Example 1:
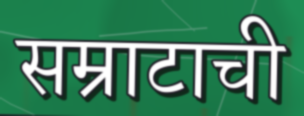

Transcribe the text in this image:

सम्राटाची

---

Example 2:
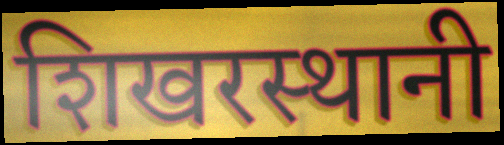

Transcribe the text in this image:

शिखरस्थानी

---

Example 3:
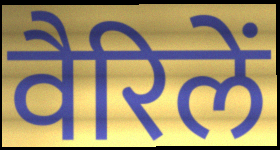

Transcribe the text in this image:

वैरिलें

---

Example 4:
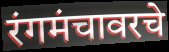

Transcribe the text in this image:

रंगमंचावरचे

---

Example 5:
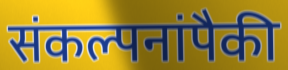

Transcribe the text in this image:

संकल्पनांपैकी